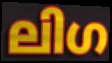
ലിഗ